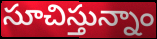
సూచిస్తున్నాం